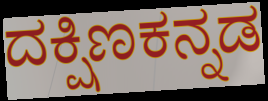
ದಕ್ಷಿಣಕನ್ನಡ